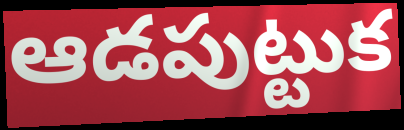
ఆడపుట్టుక